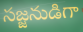
సజ్జనుడిగా